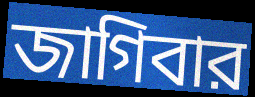
জাগিবার